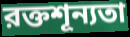
রক্তশূন্যতা